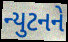
ન્યુટનને